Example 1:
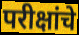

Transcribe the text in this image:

परीक्षांचे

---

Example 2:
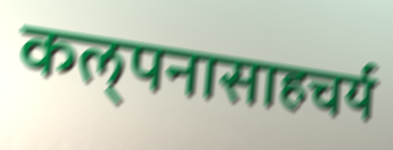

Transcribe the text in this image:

कल्पनासाहचर्य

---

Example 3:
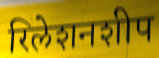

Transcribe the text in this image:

रिलेशनशीप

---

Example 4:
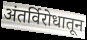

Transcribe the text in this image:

अंतर्विरोधातून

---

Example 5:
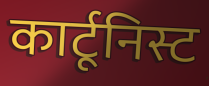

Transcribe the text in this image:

कार्टूनिस्ट